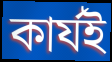
কাৰ্যই